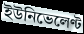
ইউনিভেলেণ্ট